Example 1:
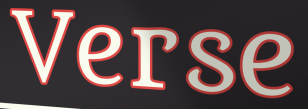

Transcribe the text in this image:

Verse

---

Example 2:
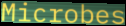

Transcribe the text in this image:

Microbes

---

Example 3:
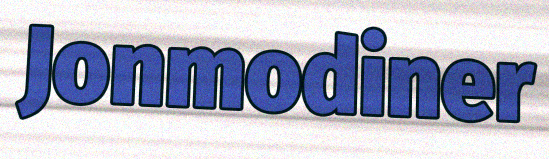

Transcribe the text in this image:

Jonmodiner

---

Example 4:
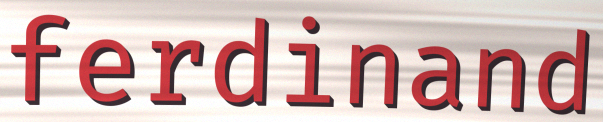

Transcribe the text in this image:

ferdinand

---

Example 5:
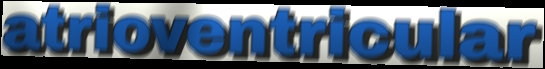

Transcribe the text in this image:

atrioventricular